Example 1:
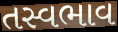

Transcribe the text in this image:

તસ્વભાવ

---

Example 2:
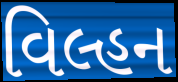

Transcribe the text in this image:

વિલ્હન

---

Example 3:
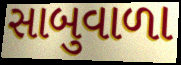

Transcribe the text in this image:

સાબુવાળા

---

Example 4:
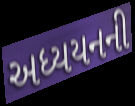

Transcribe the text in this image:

અધ્યયનની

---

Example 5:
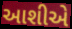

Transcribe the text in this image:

આશીએ